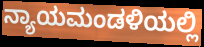
ನ್ಯಾಯಮಂಡಳಿಯಲ್ಲಿ